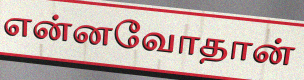
என்னவோதான்